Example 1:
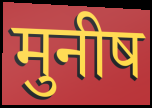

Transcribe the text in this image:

मुनीष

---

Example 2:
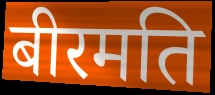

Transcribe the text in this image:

बीरमति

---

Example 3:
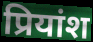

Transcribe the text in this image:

प्रियांश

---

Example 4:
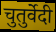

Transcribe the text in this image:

चुतुर्वेदी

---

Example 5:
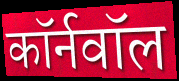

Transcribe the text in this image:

कॉर्नवॉल